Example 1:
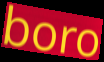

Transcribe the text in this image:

boro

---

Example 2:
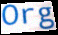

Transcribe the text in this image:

Org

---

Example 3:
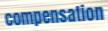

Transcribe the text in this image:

compensation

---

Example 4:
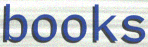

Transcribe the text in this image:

books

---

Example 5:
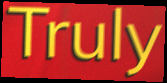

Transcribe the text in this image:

Truly